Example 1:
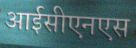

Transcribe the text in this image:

आईसीएनएस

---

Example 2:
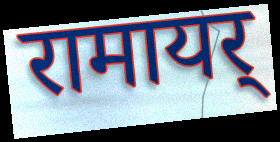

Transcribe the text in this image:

रामायर्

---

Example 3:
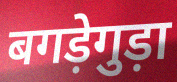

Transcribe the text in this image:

बगड़ेगुड़ा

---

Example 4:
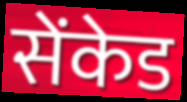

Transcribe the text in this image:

सेंकेड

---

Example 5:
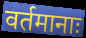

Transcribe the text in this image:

वर्तमानाः